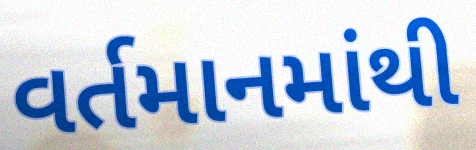
વર્તમાનમાંથી